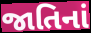
જાતિનાં